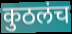
कुठलंच